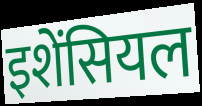
इशेंसियल